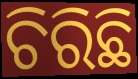
ଚିରିଛି